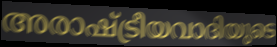
അരാഷ്ട്രീയവാദിയുടെ